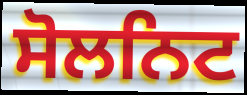
ਸੋਲਨਿਟ